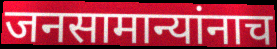
जनसामान्यांनाच